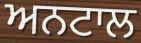
ਅਨਟਾਲ